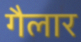
गैलार